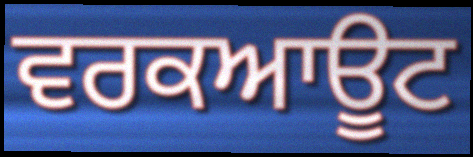
ਵਰਕਆਊਟ